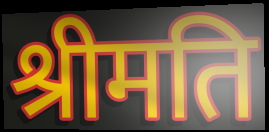
श्रीमति